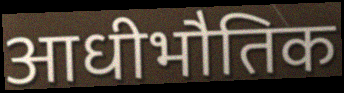
आधीभौतिक